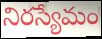
నిరస్యేమం